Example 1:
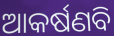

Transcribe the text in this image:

ଆକର୍ଷଣବି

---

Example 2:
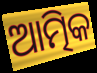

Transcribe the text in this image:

ଆତ୍ମିକ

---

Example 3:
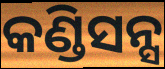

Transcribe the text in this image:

କଣ୍ଡିସନ୍ସ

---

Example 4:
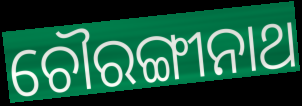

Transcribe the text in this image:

ଚୌରଙ୍ଗୀନାଥ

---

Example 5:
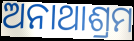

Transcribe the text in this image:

ଅନାଥାଶ୍ରମ